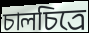
চালচিত্রে